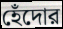
হেঁদোর